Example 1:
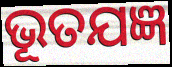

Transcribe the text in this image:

ଭୂତଯଜ୍ଞ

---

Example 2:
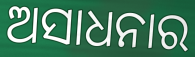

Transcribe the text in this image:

ଅସାଧନାର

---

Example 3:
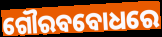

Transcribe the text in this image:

ଗୌରବବୋଧରେ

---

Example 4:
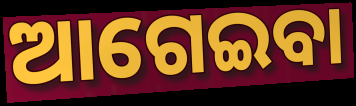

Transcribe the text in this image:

ଆଗେଇବା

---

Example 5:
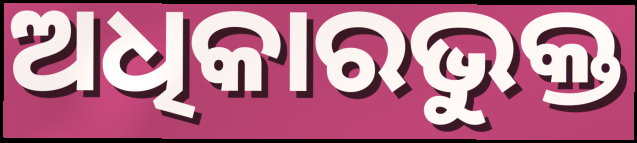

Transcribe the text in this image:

ଅଧିକାରଭୁକ୍ତ